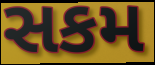
સકમ